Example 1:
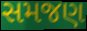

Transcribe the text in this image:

સમજણ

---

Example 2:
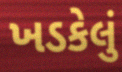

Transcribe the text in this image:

ખડકેલું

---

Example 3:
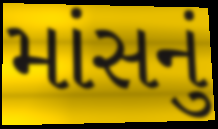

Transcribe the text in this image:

માંસનું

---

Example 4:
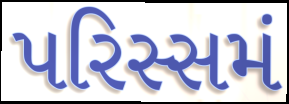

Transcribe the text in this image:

પરિસ્સમં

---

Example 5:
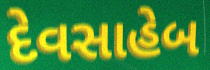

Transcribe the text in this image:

દેવસાહેબ